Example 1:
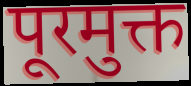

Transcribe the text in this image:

पूरमुक्त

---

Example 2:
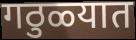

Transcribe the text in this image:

गठुळ्यात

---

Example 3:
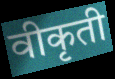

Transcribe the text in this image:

वीकृती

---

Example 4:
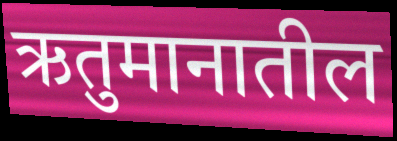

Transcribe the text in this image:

ऋतुमानातील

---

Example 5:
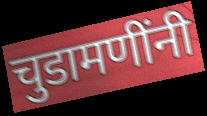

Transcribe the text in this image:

चुडामणींनी